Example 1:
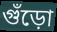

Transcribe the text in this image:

গুঁড়ো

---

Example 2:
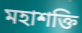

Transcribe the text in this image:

মহাশক্তি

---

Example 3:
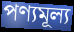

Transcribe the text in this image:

পণ্যমূল্য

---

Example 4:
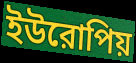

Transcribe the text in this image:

ইউরোপিয়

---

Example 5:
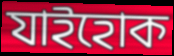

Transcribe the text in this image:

যাইহোক